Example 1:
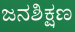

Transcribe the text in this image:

ಜನಶಿಕ್ಷಣ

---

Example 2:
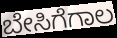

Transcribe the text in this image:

ಬೇಸಿಗೆಗಾಲ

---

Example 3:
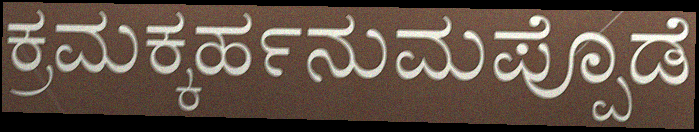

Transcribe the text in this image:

ಕ್ರಮಕ್ಕರ್ಹನುಮಪ್ಪೊಡೆ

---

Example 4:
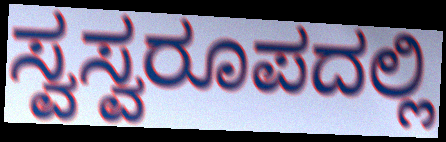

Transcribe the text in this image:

ಸ್ವಸ್ವರೂಪದಲ್ಲಿ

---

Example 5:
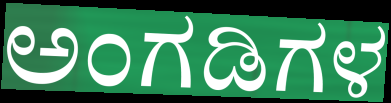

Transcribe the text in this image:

ಅಂಗಡಿಗಳ